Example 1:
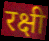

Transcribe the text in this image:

रक्षी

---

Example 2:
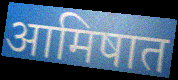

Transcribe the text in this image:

आमिषात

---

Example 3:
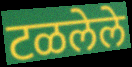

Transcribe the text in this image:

टळलेले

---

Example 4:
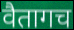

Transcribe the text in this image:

वैतागच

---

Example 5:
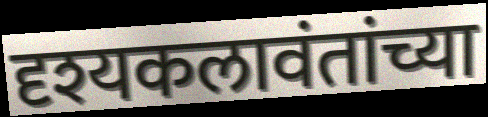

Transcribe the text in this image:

दृश्यकलावंतांच्या